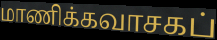
மாணிக்கவாசகப்